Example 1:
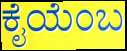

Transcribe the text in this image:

ಕೈಯೆಂಬ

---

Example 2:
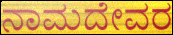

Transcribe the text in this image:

ನಾಮದೇವರ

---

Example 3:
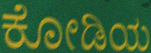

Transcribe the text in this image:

ಕೋಡಿಯ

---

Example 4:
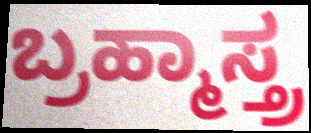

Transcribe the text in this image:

ಬ್ರಹ್ಮಾಸ್ತ್ರ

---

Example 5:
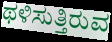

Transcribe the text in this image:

ಥಳಿಸುತ್ತಿರುವ